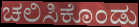
ಚಲಿಸಿಕೊಂಡು